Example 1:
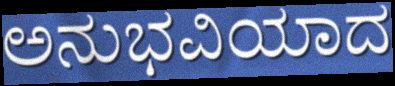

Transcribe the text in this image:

ಅನುಭವಿಯಾದ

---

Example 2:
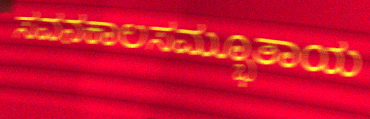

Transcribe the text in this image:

ಸವನಕಾಲಸಮ್ಭೂತಾಯ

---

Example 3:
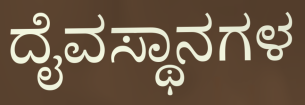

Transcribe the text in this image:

ದೈವಸ್ಥಾನಗಳ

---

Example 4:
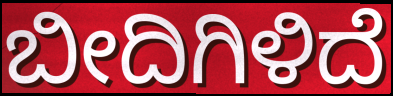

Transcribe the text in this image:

ಬೀದಿಗಿಳಿದೆ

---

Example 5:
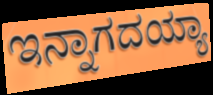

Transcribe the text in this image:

ಇನ್ನಾಗದಯ್ಯಾ